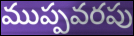
ముప్పవరపు